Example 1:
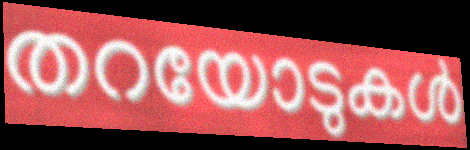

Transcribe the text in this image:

തറയോടുകൾ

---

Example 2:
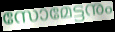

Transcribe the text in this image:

സോമേട്ടനും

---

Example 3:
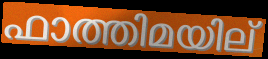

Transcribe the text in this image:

ഫാത്തിമയില്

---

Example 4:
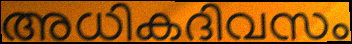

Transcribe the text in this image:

അധികദിവസം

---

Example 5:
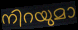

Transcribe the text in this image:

നിറയുമാ